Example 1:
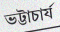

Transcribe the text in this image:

ভট্টাচার্য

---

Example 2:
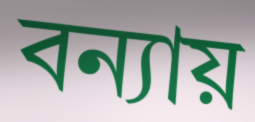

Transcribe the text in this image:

বন্যায়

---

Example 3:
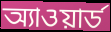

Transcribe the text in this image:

অ্যাওয়ার্ড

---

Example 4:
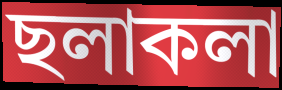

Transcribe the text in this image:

ছলাকলা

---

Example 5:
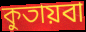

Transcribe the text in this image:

কুতায়বা